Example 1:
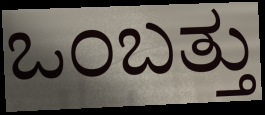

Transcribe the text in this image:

ಒಂಬತ್ತು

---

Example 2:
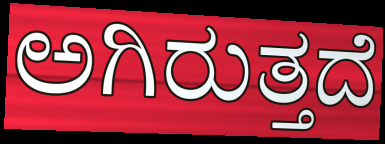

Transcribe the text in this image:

ಅಗಿರುತ್ತದೆ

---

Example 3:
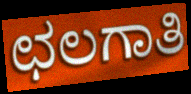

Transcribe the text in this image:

ಛಲಗಾತಿ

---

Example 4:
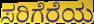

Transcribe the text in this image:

ಸರಿಗೆರೆಯ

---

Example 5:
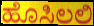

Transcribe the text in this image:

ಹೊಸಿಲಲಿ